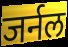
जर्नल